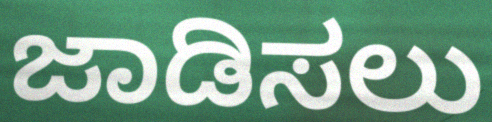
ಜಾಡಿಸಲು